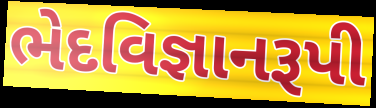
ભેદવિજ્ઞાનરૂપી